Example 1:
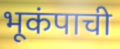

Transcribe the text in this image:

भूकंपाची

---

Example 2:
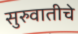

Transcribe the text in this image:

सुरुवातीचे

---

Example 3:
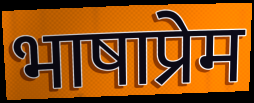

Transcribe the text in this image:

भाषाप्रेम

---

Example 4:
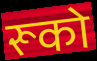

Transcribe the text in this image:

रूको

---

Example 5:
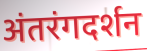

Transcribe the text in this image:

अंतरंगदर्शन